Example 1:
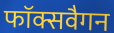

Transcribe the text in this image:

फॉक्सवैगन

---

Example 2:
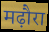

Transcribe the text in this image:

मढ़ौरा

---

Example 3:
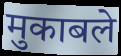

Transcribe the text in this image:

मुकाबले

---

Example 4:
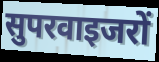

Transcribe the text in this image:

सुपरवाइजरों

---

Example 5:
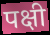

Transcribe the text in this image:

पक्षी